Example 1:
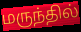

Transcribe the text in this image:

மருந்தில்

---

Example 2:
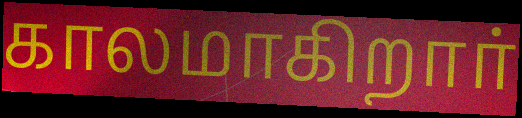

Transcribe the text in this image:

காலமாகிறார்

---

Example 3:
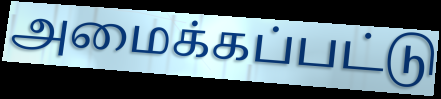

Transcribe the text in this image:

அமைக்கப்பட்டு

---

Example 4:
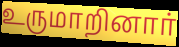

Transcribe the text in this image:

உருமாறினார்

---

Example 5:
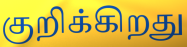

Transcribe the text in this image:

குறிக்கிறது